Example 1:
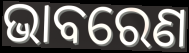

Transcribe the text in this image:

ଭାବରେଣ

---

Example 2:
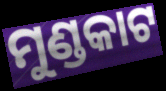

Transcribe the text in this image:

ମୁଣ୍ଡକାଟ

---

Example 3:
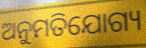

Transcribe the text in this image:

ଅନୁମତିଯୋଗ୍ୟ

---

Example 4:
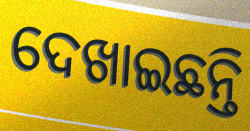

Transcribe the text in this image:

ଦେଖାଇଛନ୍ତି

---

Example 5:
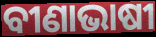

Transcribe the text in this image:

ବୀଣାଭାଷୀ